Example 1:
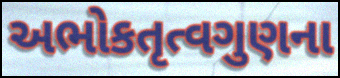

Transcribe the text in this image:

અભોકતૃત્વગુણના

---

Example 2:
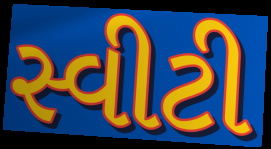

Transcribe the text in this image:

સ્વીટી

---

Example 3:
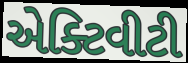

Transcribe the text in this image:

એક્ટિવીટી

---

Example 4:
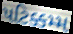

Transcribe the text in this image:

પટિક્કમ્મ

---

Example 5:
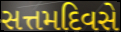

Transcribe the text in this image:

સત્તમદિવસે